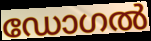
ഡോഗൽ